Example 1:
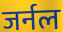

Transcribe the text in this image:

जर्नल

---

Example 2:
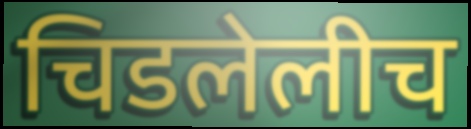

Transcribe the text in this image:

चिडलेलीच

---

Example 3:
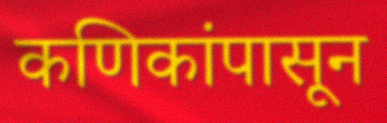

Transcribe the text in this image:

कणिकांपासून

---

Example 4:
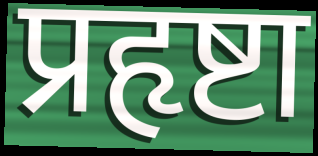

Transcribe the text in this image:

प्रहृष्टा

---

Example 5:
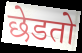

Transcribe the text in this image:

छेडतो